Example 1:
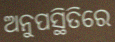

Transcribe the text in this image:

ଅନୁପସ୍ଥିତିରେ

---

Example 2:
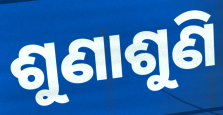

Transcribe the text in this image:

ଶୁଣାଶୁଣି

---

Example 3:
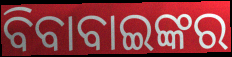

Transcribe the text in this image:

ବିବାବାଇଙ୍କର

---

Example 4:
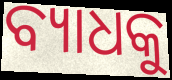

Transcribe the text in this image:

ବ୍ୟାଧକୁ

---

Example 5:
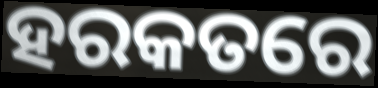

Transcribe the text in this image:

ହରକତରେ